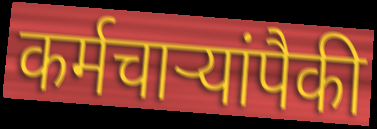
कर्मचार्‍यांपैकी